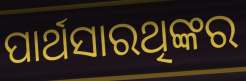
ପାର୍ଥସାରଥିଙ୍କର